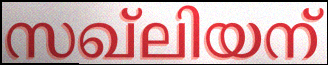
സഖ്ലിയന്